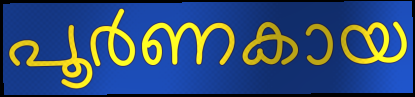
പൂർണകായ